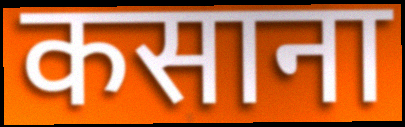
कसाना